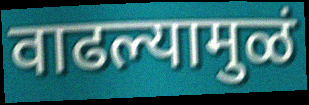
वाढल्यामुळं